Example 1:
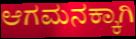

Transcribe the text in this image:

ಆಗಮನಕ್ಕಾಗಿ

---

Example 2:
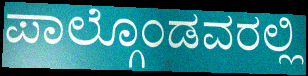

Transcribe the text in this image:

ಪಾಲ್ಗೊಂಡವರಲ್ಲಿ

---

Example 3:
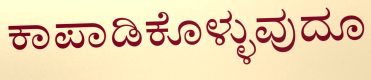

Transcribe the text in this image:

ಕಾಪಾಡಿಕೊಳ್ಳುವುದೂ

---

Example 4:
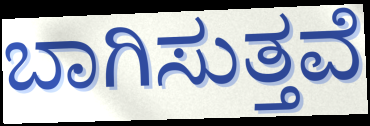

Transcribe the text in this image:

ಬಾಗಿಸುತ್ತವೆ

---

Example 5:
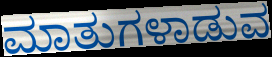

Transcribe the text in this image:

ಮಾತುಗಳಾಡುವ